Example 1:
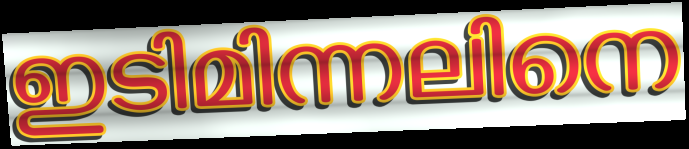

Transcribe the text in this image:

ഇടിമിന്നലിനെ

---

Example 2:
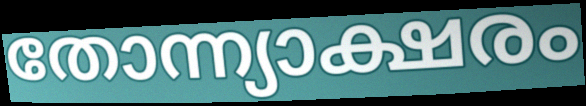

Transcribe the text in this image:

തോന്ന്യാക്ഷരം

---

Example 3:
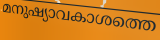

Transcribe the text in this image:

മനുഷ്യാവകാശത്തെ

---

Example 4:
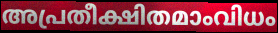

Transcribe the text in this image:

അപ്രതീക്ഷിതമാംവിധം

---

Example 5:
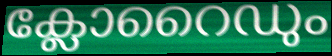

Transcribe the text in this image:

ക്ലോറൈഡും